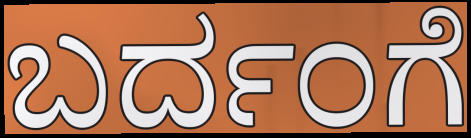
ಬರ್ದಂಗೆ